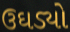
ઉઘડ્યો